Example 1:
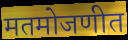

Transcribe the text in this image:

मतमोजणीत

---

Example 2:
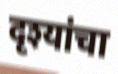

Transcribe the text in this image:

दृश्यांचा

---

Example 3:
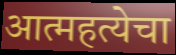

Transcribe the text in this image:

आत्महत्येचा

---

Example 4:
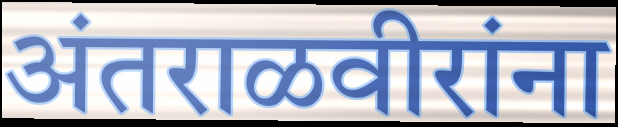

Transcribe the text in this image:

अंतराळवीरांना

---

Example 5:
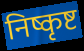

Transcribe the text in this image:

निष्कृष्ट